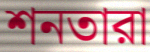
শনতারা